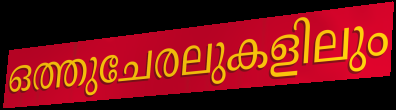
ഒത്തുചേരലുകളിലും